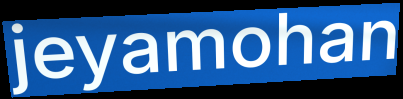
jeyamohan